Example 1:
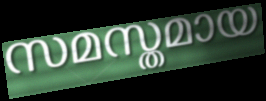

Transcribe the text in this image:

സമസ്തമായ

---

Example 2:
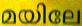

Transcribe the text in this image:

മയിലേ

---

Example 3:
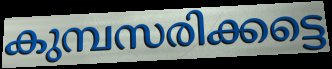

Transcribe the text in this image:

കുമ്പസരിക്കട്ടെ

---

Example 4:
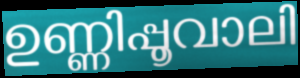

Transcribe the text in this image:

ഉണ്ണിപ്പൂവാലി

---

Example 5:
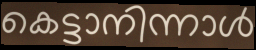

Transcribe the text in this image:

കെട്ടാനിന്നാൾ